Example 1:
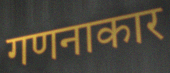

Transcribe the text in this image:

गणनाकार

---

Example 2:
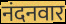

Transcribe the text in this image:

नंदनवार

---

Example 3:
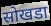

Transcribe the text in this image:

सोखडा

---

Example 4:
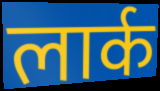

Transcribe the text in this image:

लार्क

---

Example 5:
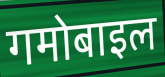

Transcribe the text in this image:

गमोबाइल